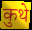
कुथे